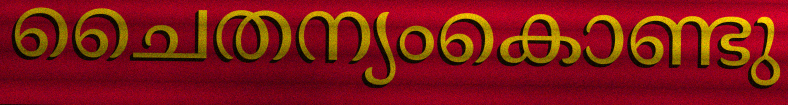
ചൈതന്യംകൊണ്ടു